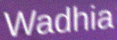
Wadhia